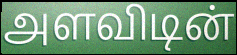
அளவிடின்